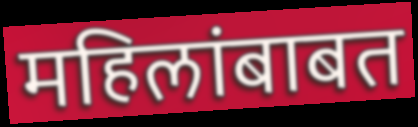
महिलांबाबत